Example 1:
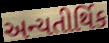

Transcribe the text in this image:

અન્યતીર્થિક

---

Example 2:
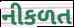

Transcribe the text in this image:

નીકળત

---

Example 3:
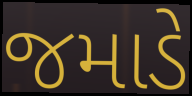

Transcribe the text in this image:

જમાડે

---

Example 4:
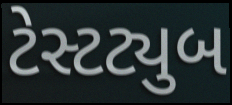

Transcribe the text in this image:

ટેસ્ટટ્યુબ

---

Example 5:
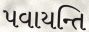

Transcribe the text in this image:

પવાયન્તિ